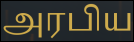
அரபிய